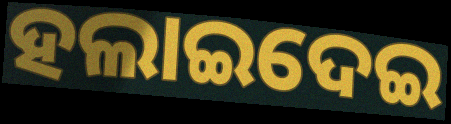
ହଲାଇଦେଇ